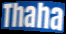
Thaha